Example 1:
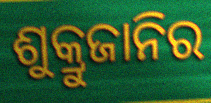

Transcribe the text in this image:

ଶୁକ୍ରୁଜାନିର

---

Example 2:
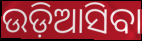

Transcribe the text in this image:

ଉଡ଼ିଆସିବା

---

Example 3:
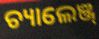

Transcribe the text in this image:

ଚ୍ୟାଲେଞ୍ଜ୍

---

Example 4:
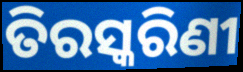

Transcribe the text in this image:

ତିରସ୍କରିଣୀ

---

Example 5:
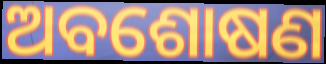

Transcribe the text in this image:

ଅବଶୋଷଣ